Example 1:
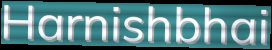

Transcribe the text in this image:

Harnishbhai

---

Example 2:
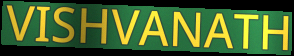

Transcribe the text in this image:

VISHVANATH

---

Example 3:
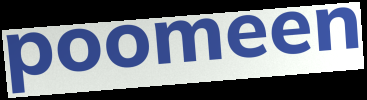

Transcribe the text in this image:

poomeen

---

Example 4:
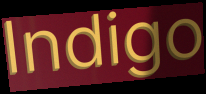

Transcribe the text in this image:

Indigo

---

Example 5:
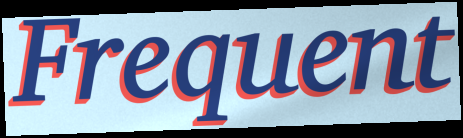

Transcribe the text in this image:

Frequent